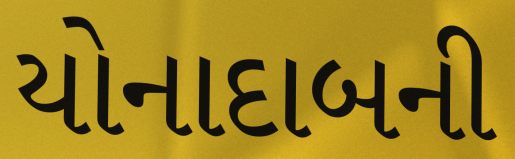
યોનાદાબની